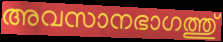
അവസാനഭാഗത്തു്